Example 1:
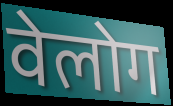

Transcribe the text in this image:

वेलोग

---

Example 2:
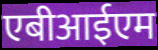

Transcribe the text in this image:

एबीआईएम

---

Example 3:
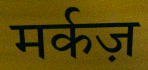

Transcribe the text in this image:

मर्कज़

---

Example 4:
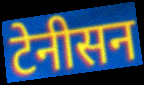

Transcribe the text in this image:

टेनीसन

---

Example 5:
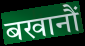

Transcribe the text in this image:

बखानौं